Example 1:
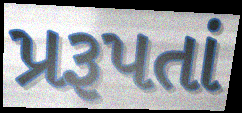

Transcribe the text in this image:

પ્રરૂપતાં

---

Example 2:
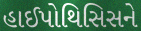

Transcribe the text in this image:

હાઈપોથિસિસને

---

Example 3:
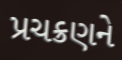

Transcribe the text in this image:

પ્રચક્રણને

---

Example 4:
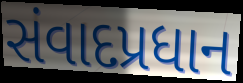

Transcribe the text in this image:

સંવાદપ્રધાન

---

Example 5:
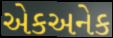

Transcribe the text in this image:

એકઅનેક